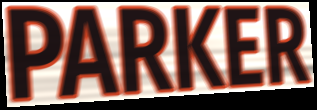
PARKER